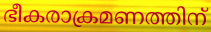
ഭീകരാക്രമണത്തിന്